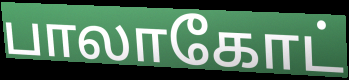
பாலாகோட்